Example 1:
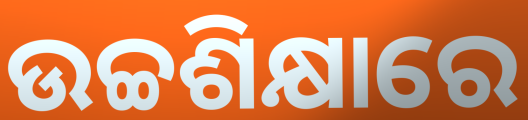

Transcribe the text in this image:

ଉଚ୍ଚଶିକ୍ଷାରେ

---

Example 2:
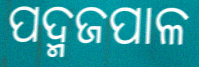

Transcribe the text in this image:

ପଦ୍ମଜପାଳ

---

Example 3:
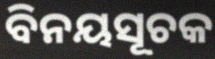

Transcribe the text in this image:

ବିନୟସୂଚକ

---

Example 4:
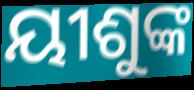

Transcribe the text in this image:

ୟୀଶୁଙ୍କ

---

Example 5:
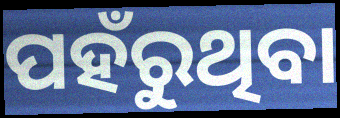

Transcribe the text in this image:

ପହଁରୁଥିବା